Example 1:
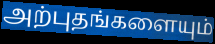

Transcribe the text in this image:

அற்புதங்களையும்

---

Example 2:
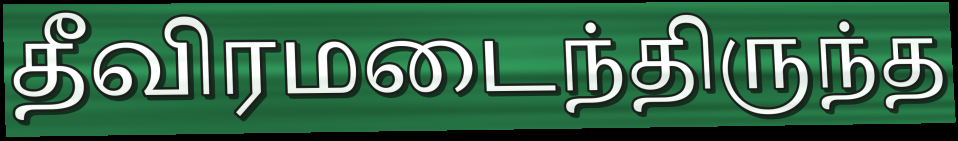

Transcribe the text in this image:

தீவிரமடைந்திருந்த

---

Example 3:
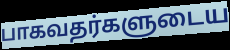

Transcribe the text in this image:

பாகவதர்களுடைய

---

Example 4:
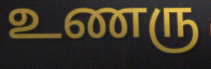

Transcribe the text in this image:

உணரு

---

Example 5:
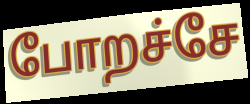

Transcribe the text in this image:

போறச்சே